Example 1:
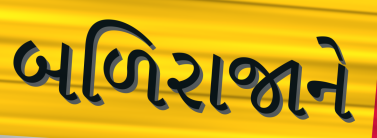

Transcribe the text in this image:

બળિરાજાને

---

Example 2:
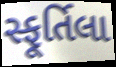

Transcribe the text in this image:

સ્ફૂર્તિલા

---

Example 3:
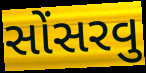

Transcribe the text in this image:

સોંસરવુ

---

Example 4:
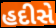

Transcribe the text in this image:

હદીસે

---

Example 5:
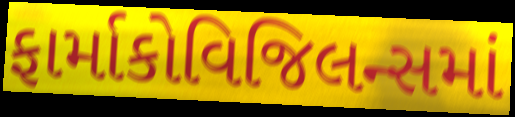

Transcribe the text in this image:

ફાર્માકોવિજિલન્સમાં